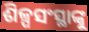
ଶିଳ୍ପସଂସ୍ଥାଙ୍କୁ